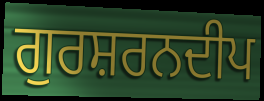
ਗੁਰਸ਼ਰਨਦੀਪ